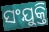
ସଂଯୁକ୍ତି